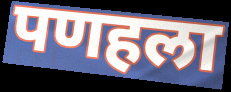
पणहला